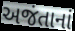
અજંતાનાં